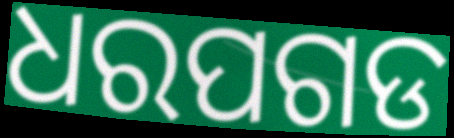
ଧରପଗଡ